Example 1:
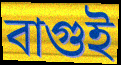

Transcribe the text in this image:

বাগুই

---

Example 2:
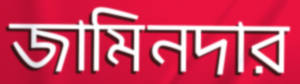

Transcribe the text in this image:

জামিনদার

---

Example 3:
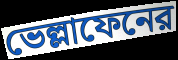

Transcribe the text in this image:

ভেল্লাফেনের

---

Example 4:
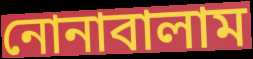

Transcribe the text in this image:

নোনাবালাম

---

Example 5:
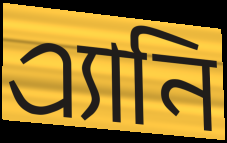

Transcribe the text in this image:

এ্যানি